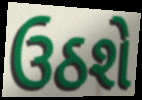
ઉઠશે